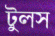
টুলস